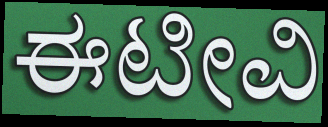
ಈಟೀವಿ